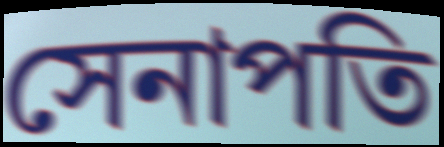
সেনাপতি